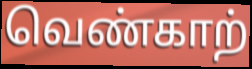
வெண்காற்